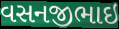
વસનજીભાઇ